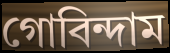
গোবিন্দাম